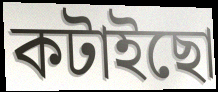
কটাইছো